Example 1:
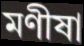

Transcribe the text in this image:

মণীষা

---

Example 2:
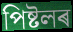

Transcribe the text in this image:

পিষ্টলৰ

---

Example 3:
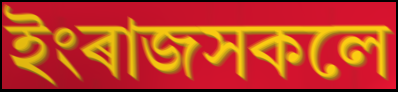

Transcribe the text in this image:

ইংৰাজসকলে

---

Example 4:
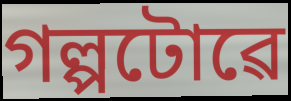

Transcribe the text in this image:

গল্পটোৱে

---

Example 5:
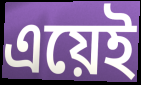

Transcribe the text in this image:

এয়েই